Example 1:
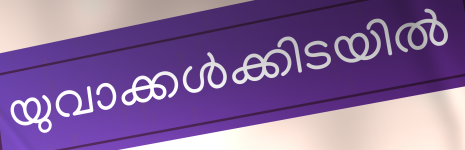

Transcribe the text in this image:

യുവാക്കൾക്കിടയിൽ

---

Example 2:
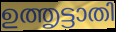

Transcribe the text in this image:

ഉത്തൃട്ടാതി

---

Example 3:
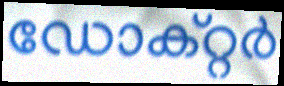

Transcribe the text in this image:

ഡോക്റ്റർ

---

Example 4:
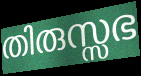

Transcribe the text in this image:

തിരുസ്സഭ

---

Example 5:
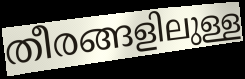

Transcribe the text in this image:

തീരങ്ങളിലുള്ള